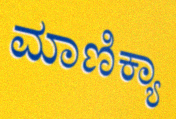
ಮಾಣಿಕ್ಯಾ